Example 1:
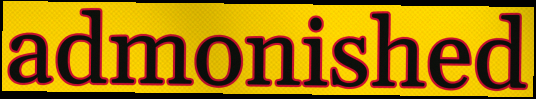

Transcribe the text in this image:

admonished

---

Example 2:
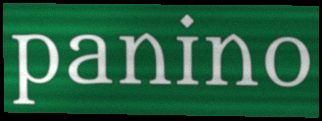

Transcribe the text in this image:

panino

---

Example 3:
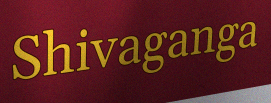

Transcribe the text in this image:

Shivaganga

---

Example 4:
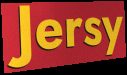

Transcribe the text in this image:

Jersy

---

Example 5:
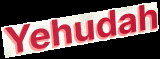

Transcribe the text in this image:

Yehudah